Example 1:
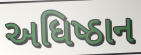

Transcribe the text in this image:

અધિષ્ઠાન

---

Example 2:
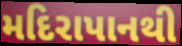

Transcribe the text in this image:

મદિરાપાનથી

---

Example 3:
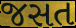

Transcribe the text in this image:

જસત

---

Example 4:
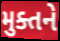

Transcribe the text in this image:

મુક્તને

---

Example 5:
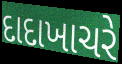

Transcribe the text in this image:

દાદાખાચરે